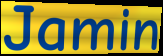
Jamin